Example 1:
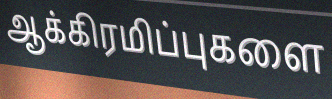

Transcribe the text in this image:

ஆக்கிரமிப்புகளை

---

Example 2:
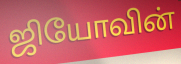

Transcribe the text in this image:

ஜியோவின்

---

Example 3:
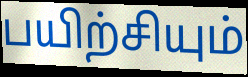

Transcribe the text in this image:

பயிற்சியும்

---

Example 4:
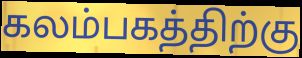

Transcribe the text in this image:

கலம்பகத்திற்கு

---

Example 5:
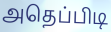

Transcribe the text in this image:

அதெப்பிடி